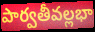
పార్వతీవల్లభా